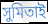
সুমিতাই